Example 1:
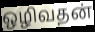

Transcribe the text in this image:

ஒழிவதன்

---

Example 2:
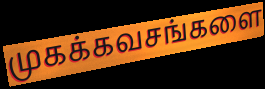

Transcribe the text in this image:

முகக்கவசங்களை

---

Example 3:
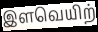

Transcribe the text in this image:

இளவெயிற்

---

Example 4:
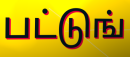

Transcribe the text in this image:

பட்டுங்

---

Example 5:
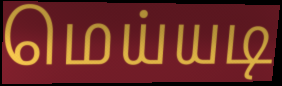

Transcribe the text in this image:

மெய்யடி